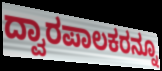
ದ್ವಾರಪಾಲಕರನ್ನೂ